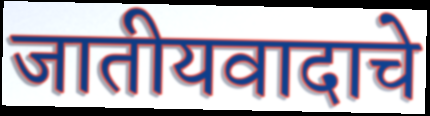
जातीयवादाचे